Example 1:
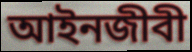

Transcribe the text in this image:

আইনজীবী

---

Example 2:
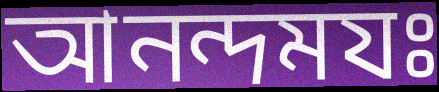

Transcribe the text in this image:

আনন্দমযঃ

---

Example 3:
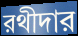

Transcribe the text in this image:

রথীদার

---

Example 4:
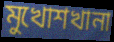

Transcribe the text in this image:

মুখোশখানা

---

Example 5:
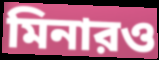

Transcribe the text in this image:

মিনারও